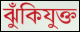
ঝুঁকিযুক্ত